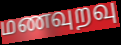
மணவுறவு